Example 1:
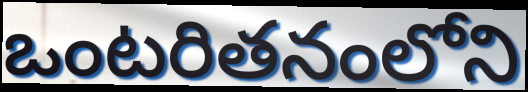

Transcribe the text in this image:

ఒంటరితనంలోని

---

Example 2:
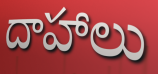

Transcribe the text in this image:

దాహాలు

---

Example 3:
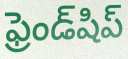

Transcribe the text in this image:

ఫ్రెండ్‌షిప్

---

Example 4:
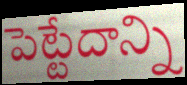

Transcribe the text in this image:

పెట్టేదాన్ని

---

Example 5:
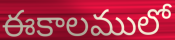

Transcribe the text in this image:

ఈకాలములో